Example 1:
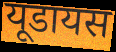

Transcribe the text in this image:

यूडायस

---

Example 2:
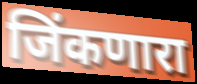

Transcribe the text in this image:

जिंकणारा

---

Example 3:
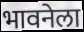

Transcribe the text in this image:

भावनेला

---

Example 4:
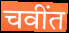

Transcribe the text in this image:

चवींत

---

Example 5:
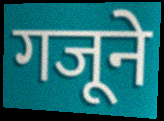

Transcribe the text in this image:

गजूने